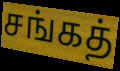
சங்கத்